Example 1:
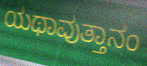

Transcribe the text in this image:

ಯಥಾವುತ್ತಾನಂ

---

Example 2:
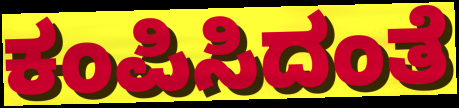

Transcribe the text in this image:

ಕಂಪಿಸಿದಂತೆ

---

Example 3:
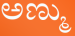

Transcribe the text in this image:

ಅಣ್ಮು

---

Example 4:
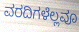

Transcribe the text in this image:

ವರದಿಗಳೆಲ್ಲವೂ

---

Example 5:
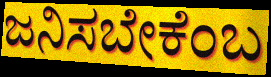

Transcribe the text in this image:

ಜನಿಸಬೇಕೆಂಬ